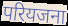
परियजना